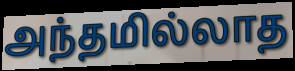
அந்தமில்லாத